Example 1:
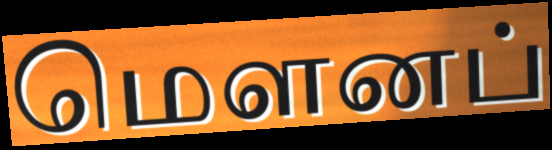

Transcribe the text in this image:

மெளனப்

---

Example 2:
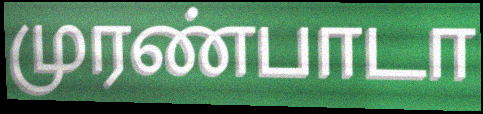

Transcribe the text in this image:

முரண்பாடா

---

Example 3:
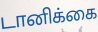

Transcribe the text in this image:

டானிக்கை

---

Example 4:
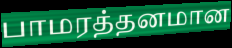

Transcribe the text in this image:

பாமரத்தனமான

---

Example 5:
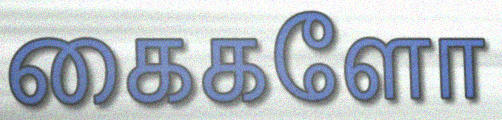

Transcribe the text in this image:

கைகளோ